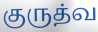
குருத்வ